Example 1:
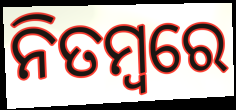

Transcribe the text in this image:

ନିତମ୍ବରେ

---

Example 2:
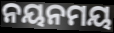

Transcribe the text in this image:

ନୟନମୟ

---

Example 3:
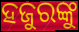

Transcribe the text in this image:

ହଜୁରଙ୍କୁ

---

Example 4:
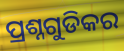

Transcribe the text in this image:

ପ୍ରଶ୍ନଗୁଡିକର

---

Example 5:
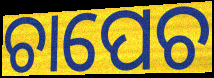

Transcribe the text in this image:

ଚାପେଚ